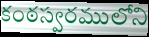
కంఠస్వరములోని